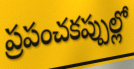
ప్రపంచకప్పుల్లో